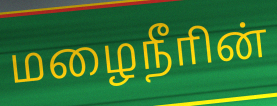
மழைநீரின்